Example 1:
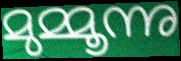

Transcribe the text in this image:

മുമ്മൂന്നു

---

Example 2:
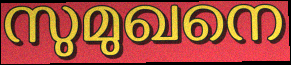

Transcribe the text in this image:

സുമുഖനെ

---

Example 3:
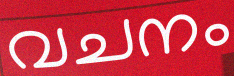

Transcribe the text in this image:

വചനം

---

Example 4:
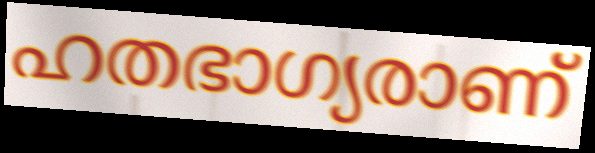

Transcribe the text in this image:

ഹതഭാഗ്യരാണ്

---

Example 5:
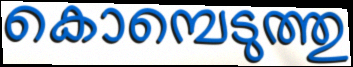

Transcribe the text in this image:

കൊമ്പെടുത്തു